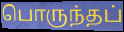
பொருந்தப்